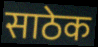
साठेक